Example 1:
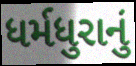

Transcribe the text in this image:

ધર્મધુરાનું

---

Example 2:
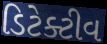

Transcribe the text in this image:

ડિટેક્ટીવ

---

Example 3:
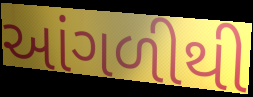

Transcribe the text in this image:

આંગળીથી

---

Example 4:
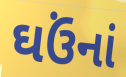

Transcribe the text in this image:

ઘઉંનાં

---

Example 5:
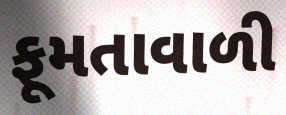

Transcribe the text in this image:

ફૂમતાવાળી